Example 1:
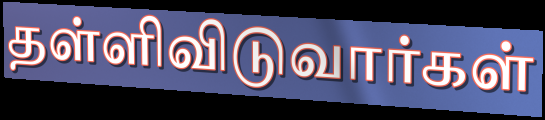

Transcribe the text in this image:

தள்ளிவிடுவார்கள்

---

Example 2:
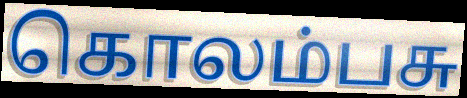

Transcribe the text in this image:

கொலம்பசு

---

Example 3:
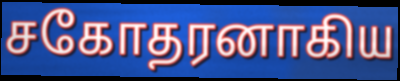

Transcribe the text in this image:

சகோதரனாகிய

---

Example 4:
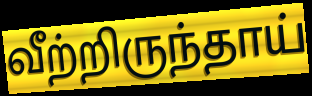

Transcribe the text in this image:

வீற்றிருந்தாய்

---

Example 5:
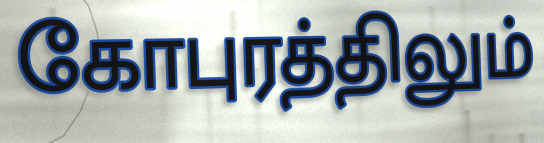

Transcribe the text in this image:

கோபுரத்திலும்